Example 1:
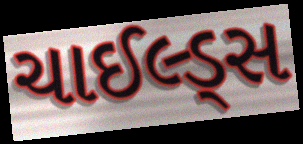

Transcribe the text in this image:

ચાઈલ્ડ્સ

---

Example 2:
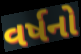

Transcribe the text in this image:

વર્ષનો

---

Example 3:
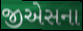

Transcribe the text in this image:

જીએસના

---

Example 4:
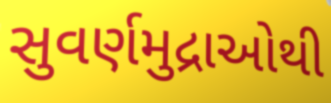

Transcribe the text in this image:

સુવર્ણમુદ્રાઓથી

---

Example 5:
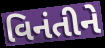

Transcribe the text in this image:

વિનંતીને